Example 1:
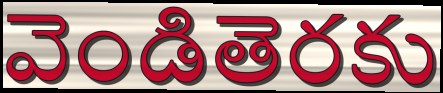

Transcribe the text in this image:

వెండితెరకు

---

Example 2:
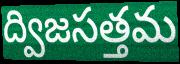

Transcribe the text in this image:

ద్విజసత్తమ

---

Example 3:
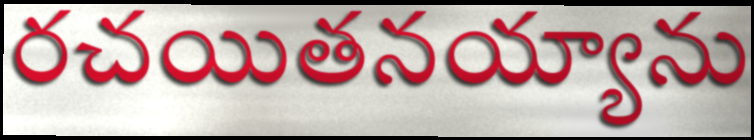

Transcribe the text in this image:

రచయితనయ్యాను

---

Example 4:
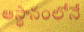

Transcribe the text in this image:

ఆస్థానంలోనే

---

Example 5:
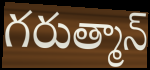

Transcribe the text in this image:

గరుత్మాన్